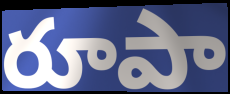
రూపా